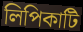
লিপিকাটি